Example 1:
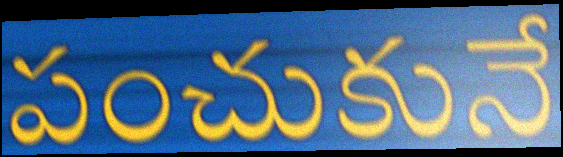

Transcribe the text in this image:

పంచుకునే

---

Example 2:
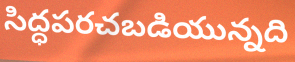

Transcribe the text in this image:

సిద్ధపరచబడియున్నది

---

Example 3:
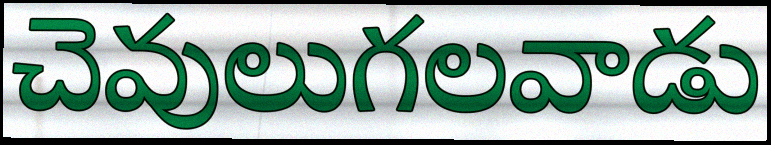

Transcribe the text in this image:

చెవులుగలవాడు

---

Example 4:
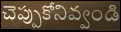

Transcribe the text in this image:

చెప్పుకోనివ్వండి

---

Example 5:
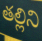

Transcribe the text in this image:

తల్లిని